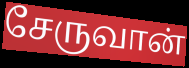
சேருவான்